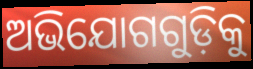
ଅଭିଯୋଗଗୁଡ଼ିକୁ